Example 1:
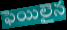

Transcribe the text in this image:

ఫెయిలైన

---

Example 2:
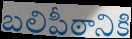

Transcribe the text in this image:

బలిపీఠానికి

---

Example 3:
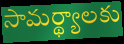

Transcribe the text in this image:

సామర్థ్యాలకు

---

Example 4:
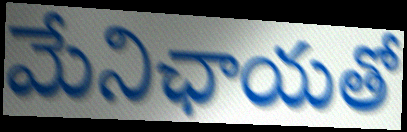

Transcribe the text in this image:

మేనిఛాయతో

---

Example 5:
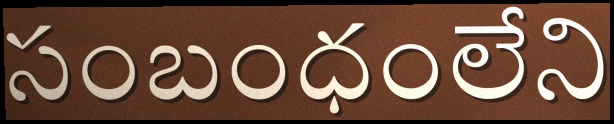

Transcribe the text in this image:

సంబంధంలేని